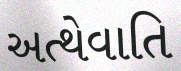
અત્થેવાતિ